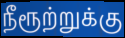
நீரூற்றுக்கு